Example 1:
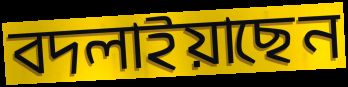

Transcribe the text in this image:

বদলাইয়াছেন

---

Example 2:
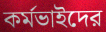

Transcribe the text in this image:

কর্মভাইদের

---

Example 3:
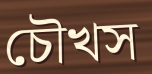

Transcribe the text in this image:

চৌখস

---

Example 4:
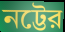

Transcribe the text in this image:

নট্টের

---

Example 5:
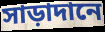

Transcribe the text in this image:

সাড়াদানে